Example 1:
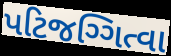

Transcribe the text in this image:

પટિજગ્ગિત્વા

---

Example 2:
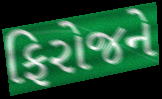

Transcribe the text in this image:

ફિરોજને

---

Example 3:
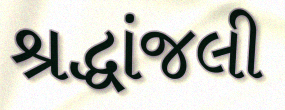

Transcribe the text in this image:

શ્રદ્ધાંજલી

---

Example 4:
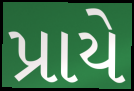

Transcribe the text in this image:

પ્રાયે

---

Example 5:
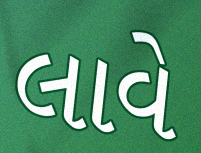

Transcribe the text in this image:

લાવે